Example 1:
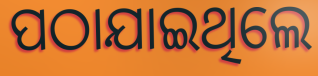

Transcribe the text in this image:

ପଠାଯାଇଥିଲେ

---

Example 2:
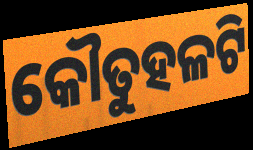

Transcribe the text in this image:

କୌତୁହଳଟି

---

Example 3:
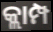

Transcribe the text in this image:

କ୍ଲାମ୍ପ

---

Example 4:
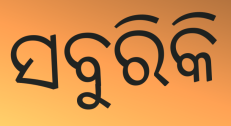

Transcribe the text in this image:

ସବୁରିକି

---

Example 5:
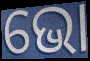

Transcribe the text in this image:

ଭୋ